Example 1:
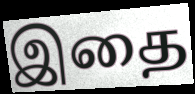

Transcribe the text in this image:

இதை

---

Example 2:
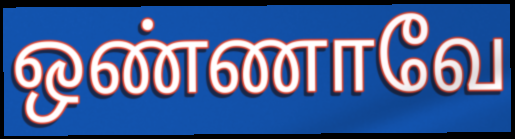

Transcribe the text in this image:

ஒண்ணாவே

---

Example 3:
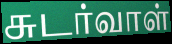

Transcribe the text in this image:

சுடர்வாள்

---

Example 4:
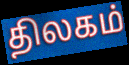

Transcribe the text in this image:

திலகம்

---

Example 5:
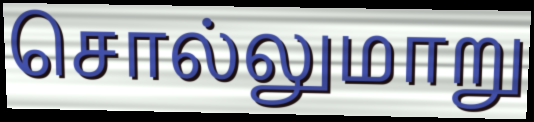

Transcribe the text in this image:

சொல்லுமாறு